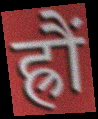
ह्रौं